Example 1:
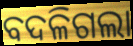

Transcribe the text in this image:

ବଦଳିଗଲା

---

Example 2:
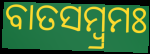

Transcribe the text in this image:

ବାତସମ୍ବ୍ରମଃ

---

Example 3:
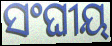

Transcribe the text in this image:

ସଂଘୀୟ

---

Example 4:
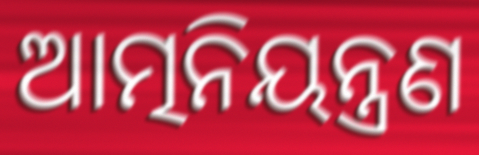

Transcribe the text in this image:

ଆତ୍ମନିୟନ୍ତ୍ରଣ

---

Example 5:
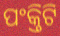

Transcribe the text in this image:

ପଂକ୍ତିଟି